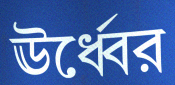
ঊর্ধ্বের